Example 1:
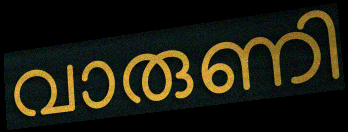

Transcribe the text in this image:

വാരുണി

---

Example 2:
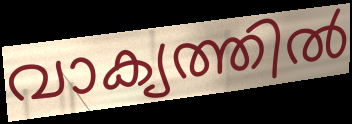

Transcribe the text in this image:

വാക്യത്തിൽ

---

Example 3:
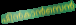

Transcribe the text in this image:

ഷിൻകാൻസെൻ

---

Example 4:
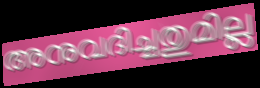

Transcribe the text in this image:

അനുവദിച്ചതുമില്ല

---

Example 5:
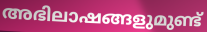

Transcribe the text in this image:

അഭിലാഷങ്ങളുമുണ്ട്